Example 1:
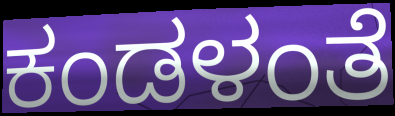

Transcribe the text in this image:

ಕಂಡಳಂತೆ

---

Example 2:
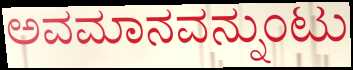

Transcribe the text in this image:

ಅವಮಾನವನ್ನುಂಟು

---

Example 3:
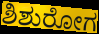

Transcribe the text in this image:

ಶಿಶುರೋಗ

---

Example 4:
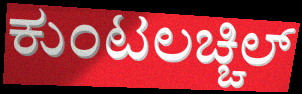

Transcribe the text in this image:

ಕುಂಟಲಚ್ಚಿಲ್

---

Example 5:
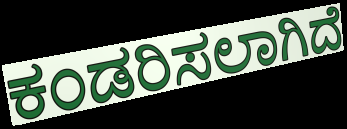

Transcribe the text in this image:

ಕಂಡರಿಸಲಾಗಿದೆ